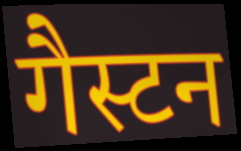
गैस्टन